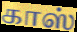
காஸ்